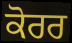
ਕੋਰਰ